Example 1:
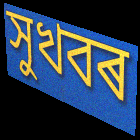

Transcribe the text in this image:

সুখবৰ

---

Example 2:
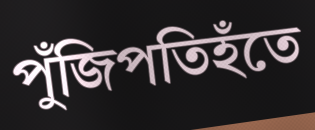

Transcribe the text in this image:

পুঁজিপতিহঁতে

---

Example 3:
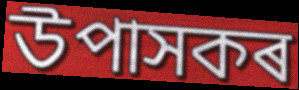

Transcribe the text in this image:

উপাসকৰ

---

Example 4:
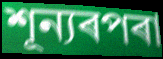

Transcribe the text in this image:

শূন্যৰপৰা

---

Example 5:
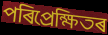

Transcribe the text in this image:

পৰিপ্ৰেক্ষিতৰ